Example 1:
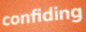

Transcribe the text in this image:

confiding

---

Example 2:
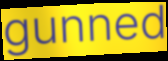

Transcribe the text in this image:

gunned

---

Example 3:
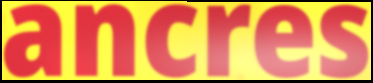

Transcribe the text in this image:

ancres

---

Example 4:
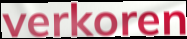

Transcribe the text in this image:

verkoren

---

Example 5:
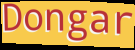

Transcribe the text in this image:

Dongar